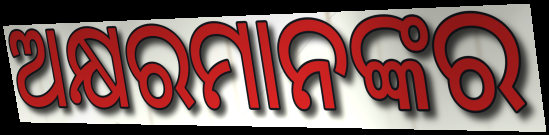
ଅକ୍ଷରମାନଙ୍କର